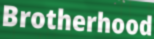
Brotherhood